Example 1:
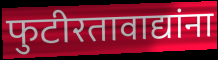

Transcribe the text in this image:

फुटीरतावाद्यांना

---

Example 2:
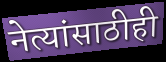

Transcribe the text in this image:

नेत्यांसाठीही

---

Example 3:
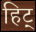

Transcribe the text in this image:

हिट्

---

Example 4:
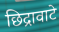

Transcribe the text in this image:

छिद्रावाटे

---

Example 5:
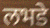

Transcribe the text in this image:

लभडे